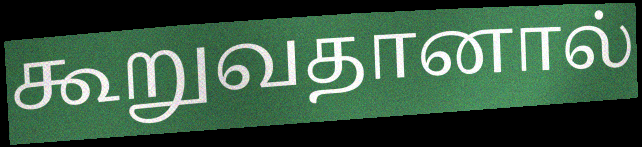
கூறுவதானால்